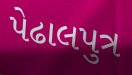
પેઢાલપુત્ર